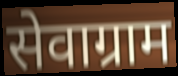
सेवाग्राम